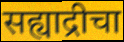
सह्याद्रीचा